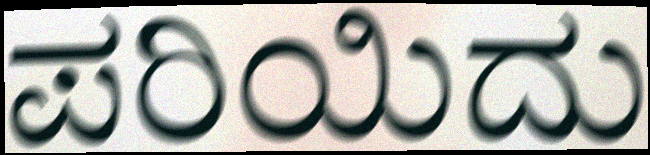
ಪರಿಯಿದು